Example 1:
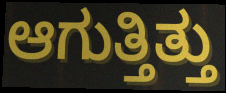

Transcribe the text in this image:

ಆಗುತ್ತಿತ್ತು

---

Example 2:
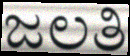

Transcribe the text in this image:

ಜಲತಿ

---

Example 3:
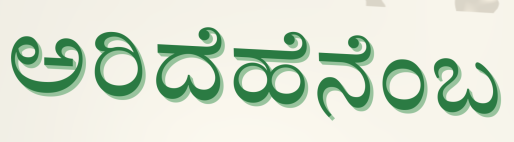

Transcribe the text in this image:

ಅರಿದೆಹೆನೆಂಬ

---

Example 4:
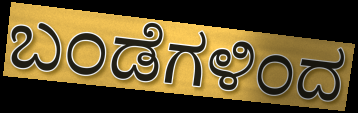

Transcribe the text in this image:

ಬಂಡೆಗಳಿಂದ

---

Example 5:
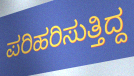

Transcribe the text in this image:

ಪರಿಹರಿಸುತ್ತಿದ್ದ